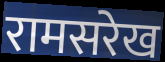
रामसरेख